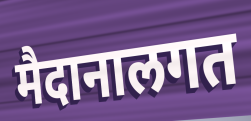
मैदानालगत